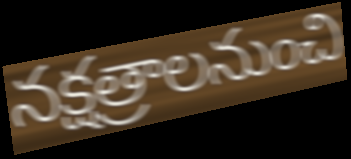
నక్షత్రాలనుంచి